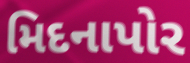
મિદનાપોર